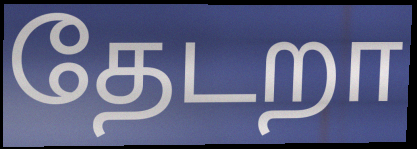
தேடறா